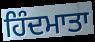
ਹਿੰਦਮਾਤਾ